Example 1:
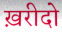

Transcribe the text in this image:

ख़रीदो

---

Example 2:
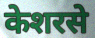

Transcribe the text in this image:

केशरसे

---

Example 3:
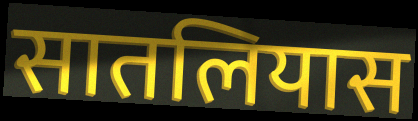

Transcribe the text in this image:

सातलियास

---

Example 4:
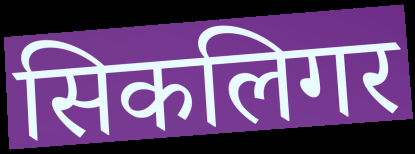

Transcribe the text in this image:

सिकलिगर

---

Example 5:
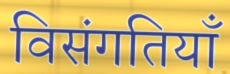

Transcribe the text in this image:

विसंगतियाँ